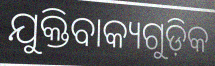
ଯୁକ୍ତିବାକ୍ୟଗୁଡ଼ିକ